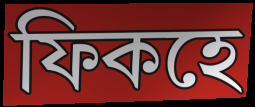
ফিকহে